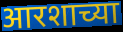
आरशाच्या